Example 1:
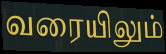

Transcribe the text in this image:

வரையிலும்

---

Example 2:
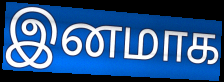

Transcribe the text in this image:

இனமாக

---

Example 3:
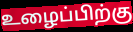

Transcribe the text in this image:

உழைப்பிற்கு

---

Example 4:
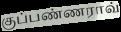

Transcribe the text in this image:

குப்பண்ணராவ்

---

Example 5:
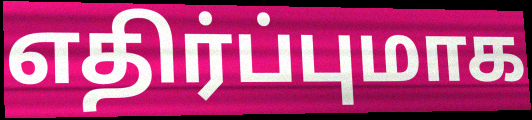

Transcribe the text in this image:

எதிர்ப்புமாக